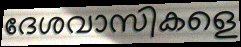
ദേശവാസികളെ